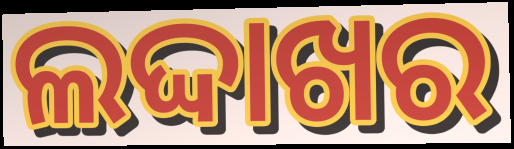
ଲଦ୍ଦାଖର